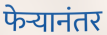
फेऱ्यानंतर